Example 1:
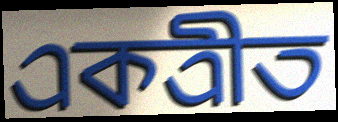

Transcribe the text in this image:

একত্ৰীত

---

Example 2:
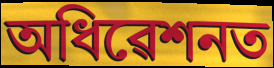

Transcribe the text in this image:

অধিৱেশনত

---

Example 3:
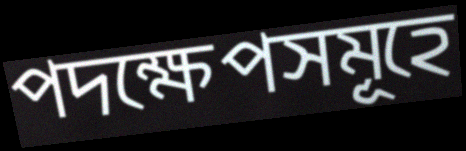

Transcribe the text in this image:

পদক্ষেপসমূহে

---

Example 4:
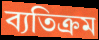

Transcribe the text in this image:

ব্যতিক্ৰম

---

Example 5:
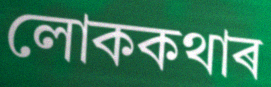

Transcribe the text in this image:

লোককথাৰ